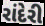
રાંદેરી